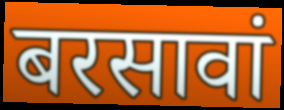
बरसावां